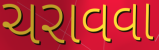
ચરાવવા